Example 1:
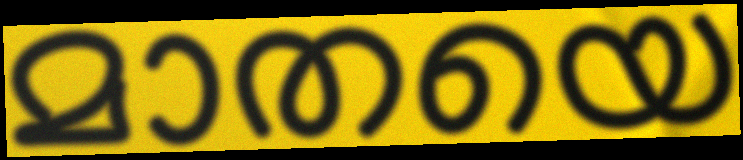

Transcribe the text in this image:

മാതയെ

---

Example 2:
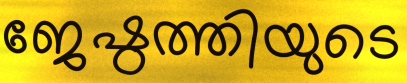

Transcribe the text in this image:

ജേഷ്ഠത്തിയുടെ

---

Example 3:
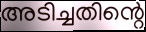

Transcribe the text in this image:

അടിച്ചതിന്റെ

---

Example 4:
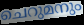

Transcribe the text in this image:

ചെറുമനും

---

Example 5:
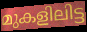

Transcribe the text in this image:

മുകളിലിട്ട